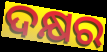
ଦକ୍ଷର